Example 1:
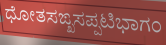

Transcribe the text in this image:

ಧೋತಸಙ್ಖಸಪ್ಪಟಿಭಾಗಂ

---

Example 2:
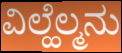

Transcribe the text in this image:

ವಿಲ್ಹೆಲ್ಮನು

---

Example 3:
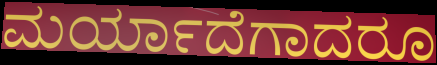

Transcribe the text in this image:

ಮರ್ಯಾದೆಗಾದರೂ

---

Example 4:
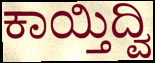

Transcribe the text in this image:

ಕಾಯ್ತಿದ್ವಿ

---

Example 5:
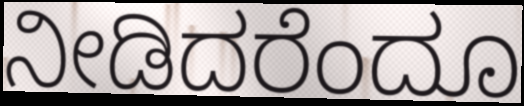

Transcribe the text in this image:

ನೀಡಿದರೆಂದೂ